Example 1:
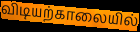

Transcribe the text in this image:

விடியற்காலையில்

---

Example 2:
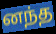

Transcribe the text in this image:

னந்த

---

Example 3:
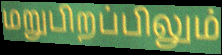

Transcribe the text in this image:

மறுபிறப்பிலும்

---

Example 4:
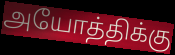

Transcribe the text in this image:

அயோத்திக்கு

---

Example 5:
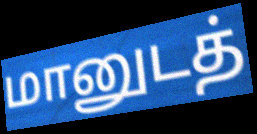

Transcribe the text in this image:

மானுடத்